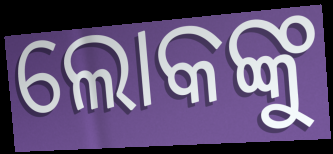
ଲୋକଙ୍କୁ